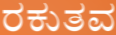
ರಕುತವ